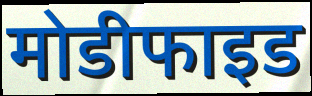
मोडीफाइड